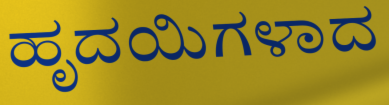
ಹೃದಯಿಗಳಾದ